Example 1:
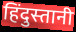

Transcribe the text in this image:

हिंदुस्तानी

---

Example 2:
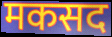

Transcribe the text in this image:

मकसद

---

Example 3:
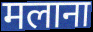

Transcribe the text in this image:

मलाना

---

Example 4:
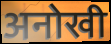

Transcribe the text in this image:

अनोखी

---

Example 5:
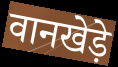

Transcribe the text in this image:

वानखेड़े